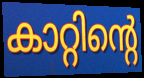
കാറ്റിന്റെ